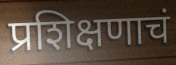
प्रशिक्षणाचं